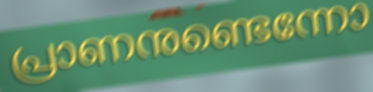
പ്രാണനുണ്ടെന്നോ